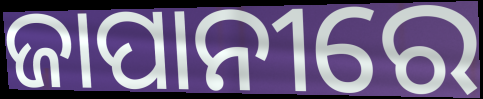
ଜାପାନୀରେ